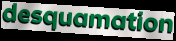
desquamation